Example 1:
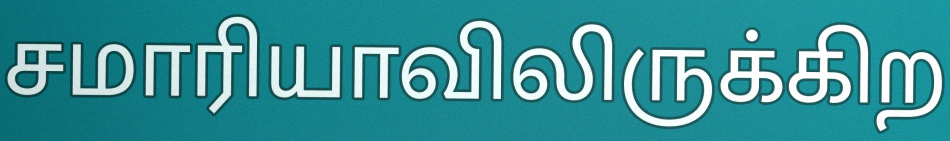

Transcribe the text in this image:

சமாரியாவிலிருக்கிற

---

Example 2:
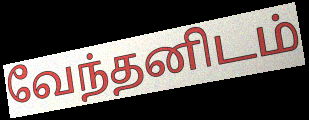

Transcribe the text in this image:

வேந்தனிடம்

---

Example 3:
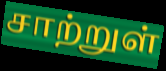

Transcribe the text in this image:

சாற்றுள்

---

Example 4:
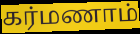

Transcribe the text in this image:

கர்மணாம்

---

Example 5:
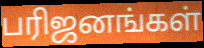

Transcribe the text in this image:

பரிஜனங்கள்